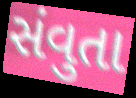
સંવુતા